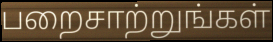
பறைசாற்றுங்கள்